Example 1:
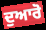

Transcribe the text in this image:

ਦੁਆਰੋ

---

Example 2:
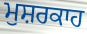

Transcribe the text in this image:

ਮੁਸ਼ਰਕਾਹ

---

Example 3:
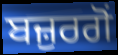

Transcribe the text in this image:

ਬਜ਼ੁਰਗੋਂ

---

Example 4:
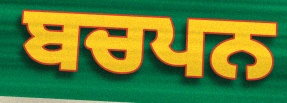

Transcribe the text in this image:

ਬਚਪਨ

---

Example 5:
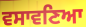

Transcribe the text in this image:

ਵਸਾਵਣਿਆ